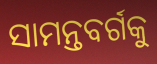
ସାମନ୍ତବର୍ଗକୁ